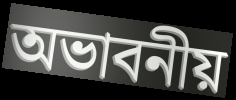
অভাবনীয়